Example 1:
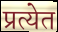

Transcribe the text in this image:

प्रत्येत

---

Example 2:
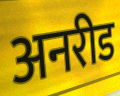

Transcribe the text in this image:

अनरीड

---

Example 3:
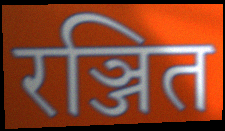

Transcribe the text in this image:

रञ्जित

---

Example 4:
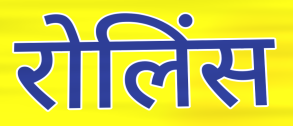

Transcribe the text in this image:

रोलिंस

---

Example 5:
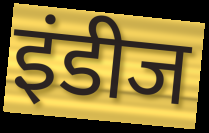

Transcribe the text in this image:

इंडीज